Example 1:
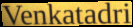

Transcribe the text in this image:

Venkatadri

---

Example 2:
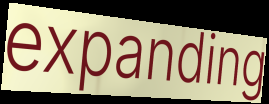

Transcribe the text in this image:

expanding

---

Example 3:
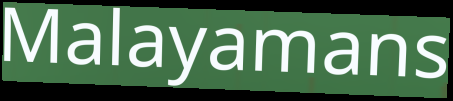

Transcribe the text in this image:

Malayamans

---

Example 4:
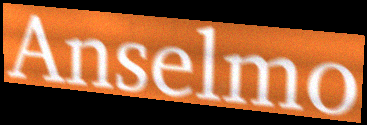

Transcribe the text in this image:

Anselmo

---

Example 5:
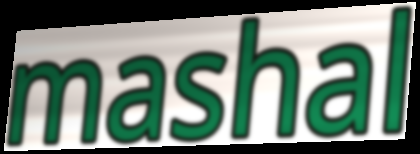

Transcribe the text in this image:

mashal